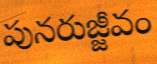
పునరుజ్జీవం